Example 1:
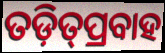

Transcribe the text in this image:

ତଡ଼ିତ୍‌ପ୍ରବାହ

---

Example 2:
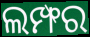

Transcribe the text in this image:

ଲମ୍ଫର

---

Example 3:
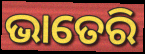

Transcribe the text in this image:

ଭାତେରି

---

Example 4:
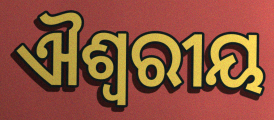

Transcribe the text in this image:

ଐଶ୍ୱରୀୟ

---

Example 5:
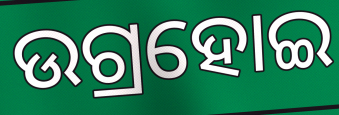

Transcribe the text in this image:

ଉଗ୍ରହୋଇ